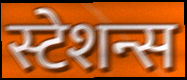
स्टेशन्स